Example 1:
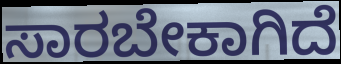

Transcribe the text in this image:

ಸಾರಬೇಕಾಗಿದೆ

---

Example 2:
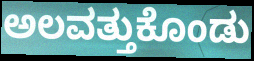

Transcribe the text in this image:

ಅಲವತ್ತುಕೊಂಡು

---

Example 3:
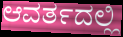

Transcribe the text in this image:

ಆವರ್ತದಲ್ಲಿ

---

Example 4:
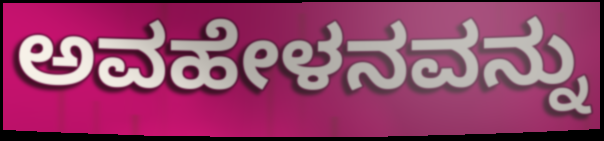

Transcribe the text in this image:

ಅವಹೇಳನವನ್ನು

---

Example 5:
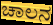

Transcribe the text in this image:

ಚಾಲನ